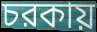
চরকায়